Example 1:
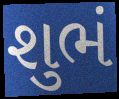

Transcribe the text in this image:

શુભં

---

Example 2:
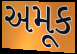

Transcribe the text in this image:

અમૂક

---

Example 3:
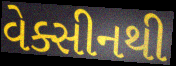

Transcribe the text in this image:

વેક્સીનથી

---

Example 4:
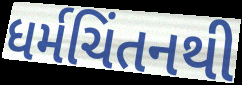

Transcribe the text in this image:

ધર્મચિંતનથી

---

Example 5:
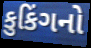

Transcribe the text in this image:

કુકિંગનો